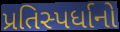
પ્રતિસ્પર્ધાનો